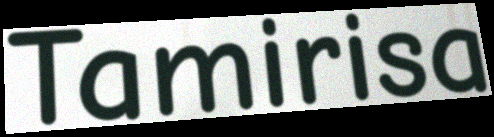
Tamirisa